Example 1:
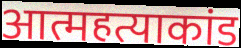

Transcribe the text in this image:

आत्महत्याकांड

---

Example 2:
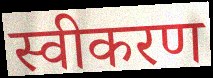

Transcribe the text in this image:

स्वीकरण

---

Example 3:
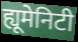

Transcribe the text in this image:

ह्यूमेनिटी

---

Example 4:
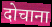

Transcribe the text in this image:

दोचाना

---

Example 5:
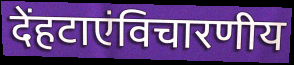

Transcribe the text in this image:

देंहटाएंविचारणीय